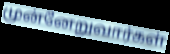
முன்னேறுவார்கள்